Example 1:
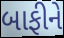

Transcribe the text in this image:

બાફીને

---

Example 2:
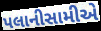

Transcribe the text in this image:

પલાનીસામીએ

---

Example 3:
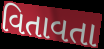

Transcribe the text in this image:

વિતાવતા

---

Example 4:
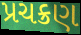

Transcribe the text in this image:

પ્રચક્રણ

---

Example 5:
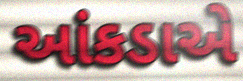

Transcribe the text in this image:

આંકડાએ